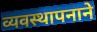
व्यवस्थापनाने